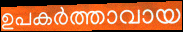
ഉപകർത്താവായ